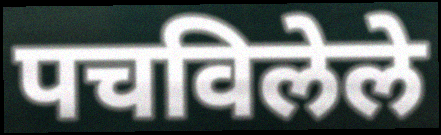
पचविलेले